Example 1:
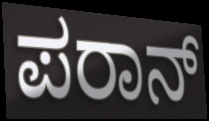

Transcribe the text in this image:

ಪರಾನ್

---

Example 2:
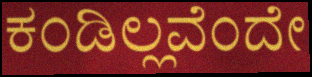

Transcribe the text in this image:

ಕಂಡಿಲ್ಲವೆಂದೇ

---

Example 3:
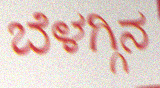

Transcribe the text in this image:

ಬೆಳಗ್ಗಿನ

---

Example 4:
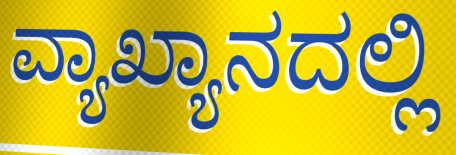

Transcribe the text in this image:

ವ್ಯಾಖ್ಯಾನದಲ್ಲಿ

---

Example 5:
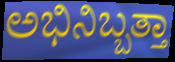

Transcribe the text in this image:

ಅಭಿನಿಬ್ಬತ್ತಾ